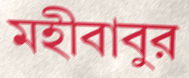
মহীবাবুর